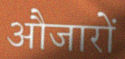
औजारों